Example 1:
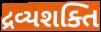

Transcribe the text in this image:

દ્રવ્યશક્તિ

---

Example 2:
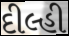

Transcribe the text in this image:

દીલ્હી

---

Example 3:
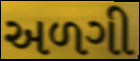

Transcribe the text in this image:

અળગી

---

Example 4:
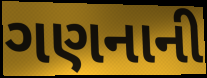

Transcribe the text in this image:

ગણનાની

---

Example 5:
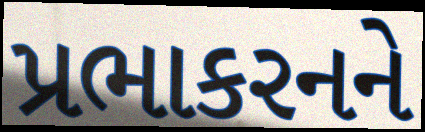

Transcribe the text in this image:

પ્રભાકરનને